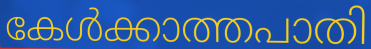
കേൾക്കാത്തപാതി